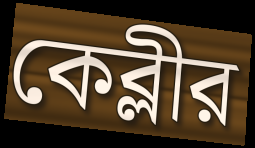
কেব্লীর